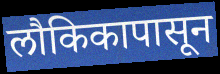
लौकिकापासून